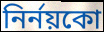
নিৰ্নয়কো